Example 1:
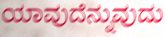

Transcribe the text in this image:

ಯಾವುದೆನ್ನುವುದು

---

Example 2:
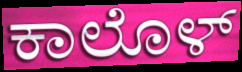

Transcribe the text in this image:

ಕಾಲೊಳ್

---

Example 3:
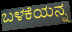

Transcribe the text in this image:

ಬಳಕೆಯನ್ನ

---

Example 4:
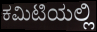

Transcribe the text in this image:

ಕಮಿಟಿಯಲ್ಲಿ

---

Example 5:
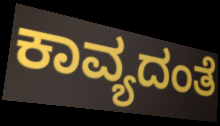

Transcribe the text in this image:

ಕಾವ್ಯದಂತೆ